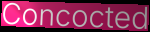
Concocted